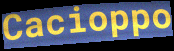
Cacioppo